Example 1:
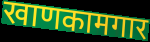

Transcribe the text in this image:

खाणकामगार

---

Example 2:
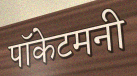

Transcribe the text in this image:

पॉकेटमनी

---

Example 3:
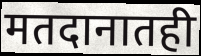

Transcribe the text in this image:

मतदानातही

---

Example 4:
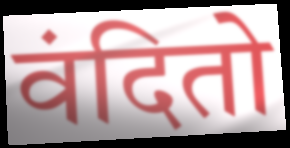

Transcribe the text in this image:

वंदितो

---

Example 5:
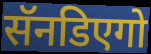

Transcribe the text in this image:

सॅनडिएगो